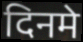
दिनमे